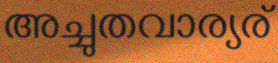
അച്ചുതവാര്യര്